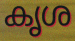
കൃശ